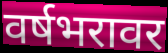
वर्षभरावर